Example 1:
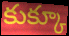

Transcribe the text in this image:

కుక్కూ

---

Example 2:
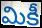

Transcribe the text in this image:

మికీ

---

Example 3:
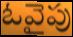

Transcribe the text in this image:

ఓవైపు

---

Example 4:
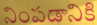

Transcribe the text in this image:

నింపడానికి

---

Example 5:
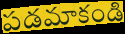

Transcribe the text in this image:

పడమాకండి